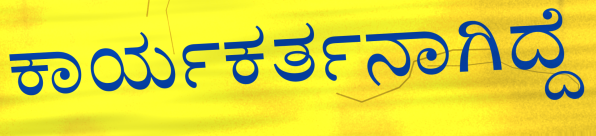
ಕಾರ್ಯಕರ್ತನಾಗಿದ್ದೆ